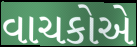
વાચકોએ